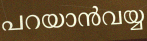
പറയാൻവയ്യ